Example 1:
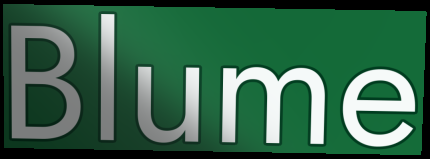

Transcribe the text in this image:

Blume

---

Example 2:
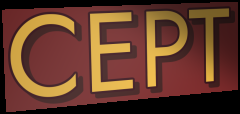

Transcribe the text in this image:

CEPT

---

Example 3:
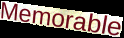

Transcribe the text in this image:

Memorable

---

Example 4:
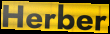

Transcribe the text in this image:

Herber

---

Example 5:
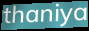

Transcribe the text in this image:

thaniya